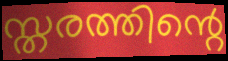
സ്തരത്തിന്റെ